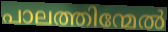
പാലത്തിന്മേൽ